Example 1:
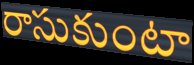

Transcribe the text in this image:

రాసుకుంటా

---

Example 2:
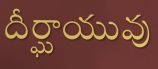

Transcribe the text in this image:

దీర్ఘాయువు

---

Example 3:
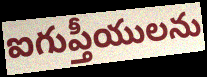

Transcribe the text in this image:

ఐగుప్తీయులను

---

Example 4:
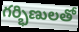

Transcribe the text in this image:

గర్భిణులతో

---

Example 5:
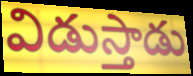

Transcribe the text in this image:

విడుస్తాడు